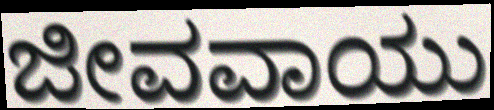
ಜೀವವಾಯು